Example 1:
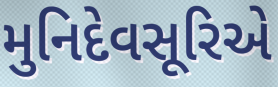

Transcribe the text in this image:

મુનિદેવસૂરિએ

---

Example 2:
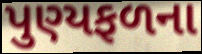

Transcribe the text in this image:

પુણ્યફળના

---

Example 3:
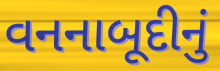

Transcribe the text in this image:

વનનાબૂદીનું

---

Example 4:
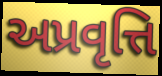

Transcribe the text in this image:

અપ્રવૃત્તિ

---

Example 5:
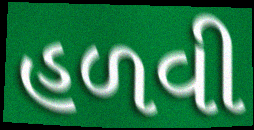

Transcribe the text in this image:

હળવી